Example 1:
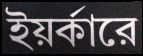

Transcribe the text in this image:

ইয়র্কারে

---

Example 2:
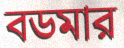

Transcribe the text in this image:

বডমার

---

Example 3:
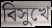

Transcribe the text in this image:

বিসুখে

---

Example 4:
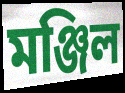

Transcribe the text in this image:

মঞ্জিল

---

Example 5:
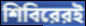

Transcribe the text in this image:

শিবিরেরই